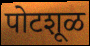
पोटशूळ